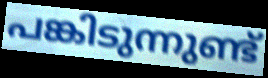
പങ്കിടുന്നുണ്ട്